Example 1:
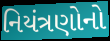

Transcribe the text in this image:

નિયંત્રણોનો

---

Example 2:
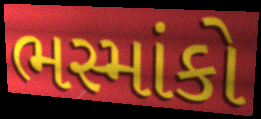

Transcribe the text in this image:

ભસ્માંકો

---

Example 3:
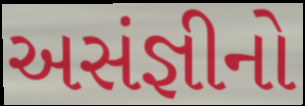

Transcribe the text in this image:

અસંજ્ઞીનો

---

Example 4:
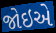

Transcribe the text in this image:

જોઇએ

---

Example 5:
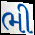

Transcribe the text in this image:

ભી